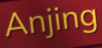
Anjing